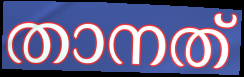
താനത്